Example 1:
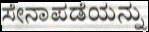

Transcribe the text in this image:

ಸೇನಾಪಡೆಯನ್ನು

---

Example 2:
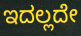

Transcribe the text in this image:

ಇದಲ್ಲದೇ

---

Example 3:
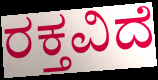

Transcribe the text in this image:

ರಕ್ತವಿದೆ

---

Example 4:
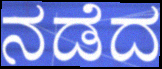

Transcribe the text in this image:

ನಡೆದ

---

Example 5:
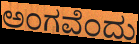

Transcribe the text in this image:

ಅಂಗವೆಂದು